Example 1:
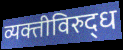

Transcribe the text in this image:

व्यक्तीविरुद्ध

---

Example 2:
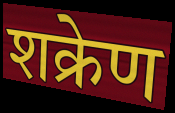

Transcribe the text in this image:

शक्रेण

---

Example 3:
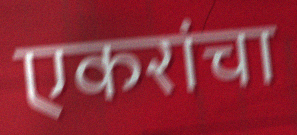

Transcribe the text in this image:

एकरांचा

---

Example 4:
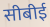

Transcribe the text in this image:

सीबीई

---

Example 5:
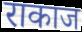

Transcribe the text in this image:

राकाज